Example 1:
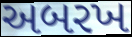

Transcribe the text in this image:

અબરખ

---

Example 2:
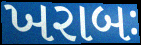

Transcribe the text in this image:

ખરાબઃ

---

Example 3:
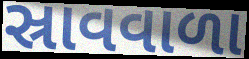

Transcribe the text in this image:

સ્રાવવાળા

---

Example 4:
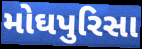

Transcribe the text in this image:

મોઘપુરિસા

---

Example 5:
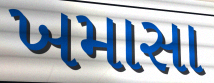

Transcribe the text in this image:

ખમાસા